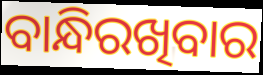
ବାନ୍ଧିରଖିବାର